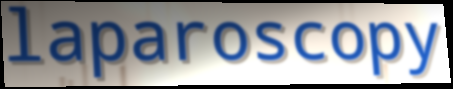
laparoscopy